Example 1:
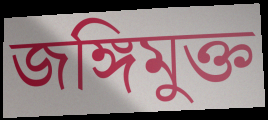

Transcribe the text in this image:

জঙ্গিমুক্ত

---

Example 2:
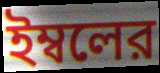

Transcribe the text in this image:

ইম্বলের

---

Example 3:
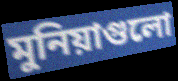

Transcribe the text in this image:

মুনিয়াগুলো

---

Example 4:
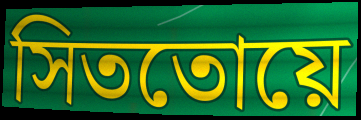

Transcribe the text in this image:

সিততোয়ে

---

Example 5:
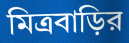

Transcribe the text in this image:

মিত্রবাড়ির